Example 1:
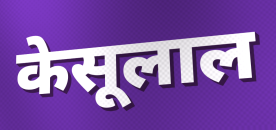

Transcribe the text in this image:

केसूलाल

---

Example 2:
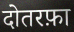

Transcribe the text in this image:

दोतरफ़ा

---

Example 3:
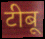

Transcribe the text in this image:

टीबू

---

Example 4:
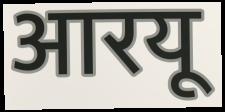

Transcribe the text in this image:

आरयू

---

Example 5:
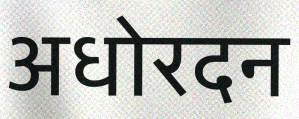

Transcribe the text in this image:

अधोरदन